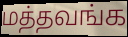
மத்தவங்க